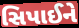
સિપાઈને